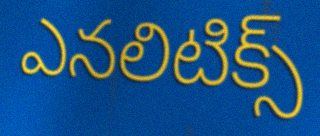
ఎనలిటిక్స్